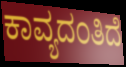
ಕಾವ್ಯದಂತಿದೆ